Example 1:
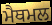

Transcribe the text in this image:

ਮੈਥਮਲ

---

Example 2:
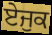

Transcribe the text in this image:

ਏਜੁਕ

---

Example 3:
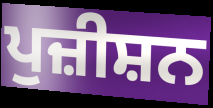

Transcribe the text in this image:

ਪੁਜ਼ੀਸ਼ਨ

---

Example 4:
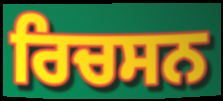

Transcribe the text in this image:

ਰਿਚਸਨ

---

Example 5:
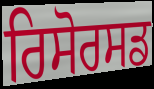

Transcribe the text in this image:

ਰਿਸੋਰਸਡ